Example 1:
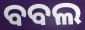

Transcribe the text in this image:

ବବଲ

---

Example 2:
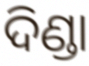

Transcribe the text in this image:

ଦିଣ୍ଡା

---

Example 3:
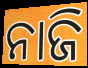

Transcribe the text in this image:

ନାଜି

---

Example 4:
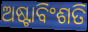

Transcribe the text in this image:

ଅଷ୍ଟାବିଂଶତି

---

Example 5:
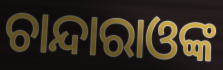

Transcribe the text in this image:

ଚାନ୍ଦାରାଓଙ୍କ